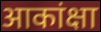
आकांक्षा